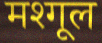
मश्गूल